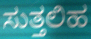
ಸುತ್ತಲಿಹ